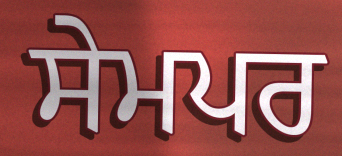
ਸੇਮਪਰ